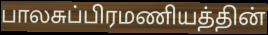
பாலசுப்பிரமணியத்தின்